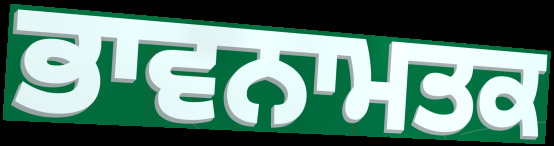
ਭਾਵਨਾਮਤਕ